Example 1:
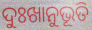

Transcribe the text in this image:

ଦୁଃଖାନୁଭୂତି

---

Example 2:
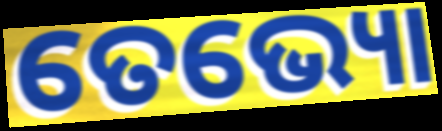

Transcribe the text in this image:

ତେଭ୍ୟୋ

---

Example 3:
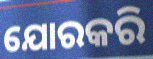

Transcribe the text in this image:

ଯୋରକରି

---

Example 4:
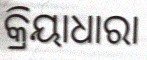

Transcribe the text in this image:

କ୍ରିୟାଧାରା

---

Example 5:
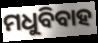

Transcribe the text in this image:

ମଧୁବିବାହ